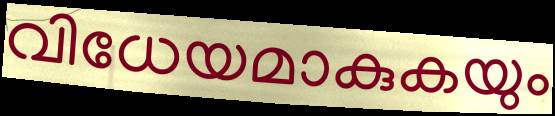
വിധേയമാകുകയും